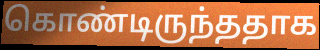
கொண்டிருந்ததாக